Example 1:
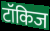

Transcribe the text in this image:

टॉकिज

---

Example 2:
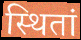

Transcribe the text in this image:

स्थितां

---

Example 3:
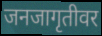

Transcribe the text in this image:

जनजागृतीवर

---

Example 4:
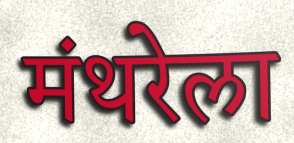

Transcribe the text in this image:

मंथरेला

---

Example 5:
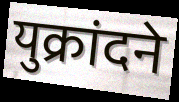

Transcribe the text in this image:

युक्रांदने